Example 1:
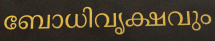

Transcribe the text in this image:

ബോധിവൃക്ഷവും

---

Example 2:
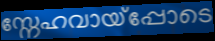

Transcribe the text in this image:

സ്നേഹവായ്പ്പോടെ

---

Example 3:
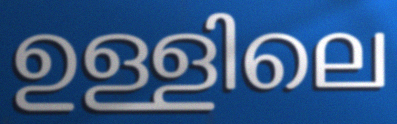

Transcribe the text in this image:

ഉള്ളിലെ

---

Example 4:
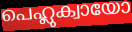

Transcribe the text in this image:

പെഹ്ലുക്വായോ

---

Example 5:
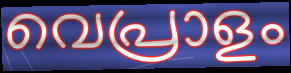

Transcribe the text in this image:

വെപ്രാളം